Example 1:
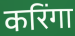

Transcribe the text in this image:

करिंगा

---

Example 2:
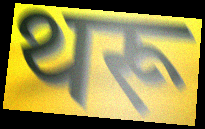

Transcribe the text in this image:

थरू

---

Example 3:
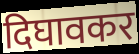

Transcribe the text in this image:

दिघावकर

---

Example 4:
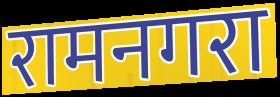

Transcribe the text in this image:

रामनगरा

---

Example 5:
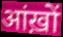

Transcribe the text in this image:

आंख़ों